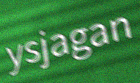
ysjagan